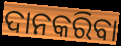
ଦାନକରିବା